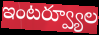
ఇంటర్వ్యూల